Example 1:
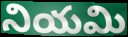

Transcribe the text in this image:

నియమి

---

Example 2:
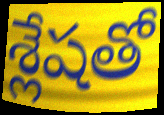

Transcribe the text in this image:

శ్లేషతో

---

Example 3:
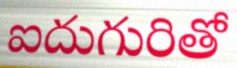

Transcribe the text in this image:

ఐదుగురితో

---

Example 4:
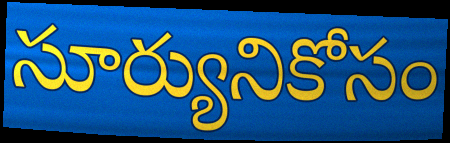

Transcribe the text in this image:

సూర్యునికోసం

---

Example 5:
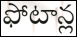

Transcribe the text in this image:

ఫోటాన్ల